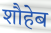
शौहेब